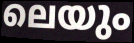
ലെയും